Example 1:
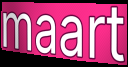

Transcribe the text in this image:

maart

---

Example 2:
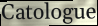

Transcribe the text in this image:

Catologue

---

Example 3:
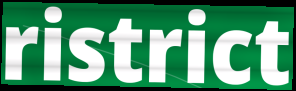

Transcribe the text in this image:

ristrict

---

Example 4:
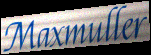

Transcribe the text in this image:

Maxmuller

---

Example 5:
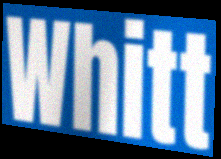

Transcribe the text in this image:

Whitt